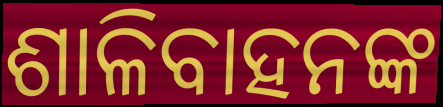
ଶାଳିବାହନଙ୍କ